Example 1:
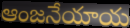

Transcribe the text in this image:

ఆంజనేయాయ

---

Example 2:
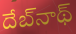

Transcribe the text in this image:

దేబ్‌నాథ్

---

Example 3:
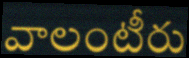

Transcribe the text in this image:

వాలంటీరు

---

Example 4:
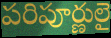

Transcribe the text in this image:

పరిపూర్ణులై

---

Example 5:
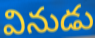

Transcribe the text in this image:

వినుడు